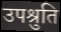
उपश्रुति